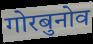
गोरबुनोव